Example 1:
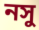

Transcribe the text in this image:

নসু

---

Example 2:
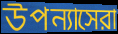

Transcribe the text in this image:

উপন্যাসেরা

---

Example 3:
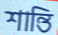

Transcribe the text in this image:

শান্তি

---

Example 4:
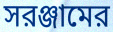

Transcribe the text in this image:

সরঞ্জামের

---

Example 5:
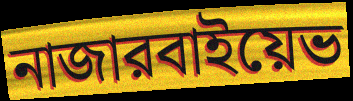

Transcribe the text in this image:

নাজারবাইয়েভ